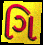
ગિ